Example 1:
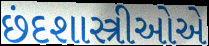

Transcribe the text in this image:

છંદશાસ્ત્રીઓએ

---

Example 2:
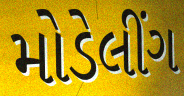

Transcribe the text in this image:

મોડેલીંગ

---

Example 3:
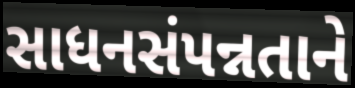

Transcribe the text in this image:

સાધનસંપન્નતાને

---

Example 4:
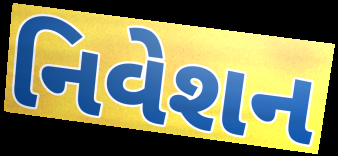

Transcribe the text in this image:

નિવેશન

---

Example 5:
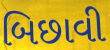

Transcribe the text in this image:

બિછાવી